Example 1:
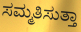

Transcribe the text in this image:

ಸಮ್ಮತಿಸುತ್ತಾ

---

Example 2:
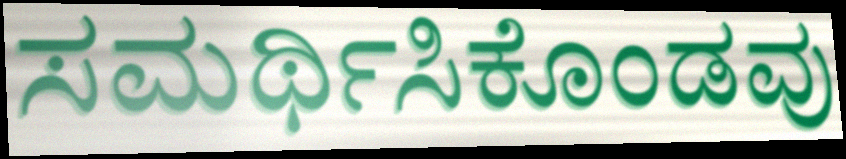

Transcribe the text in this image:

ಸಮರ್ಥಿಸಿಕೊಂಡವು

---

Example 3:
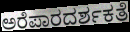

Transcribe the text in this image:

ಅರೆಪಾರದರ್ಶಕತೆ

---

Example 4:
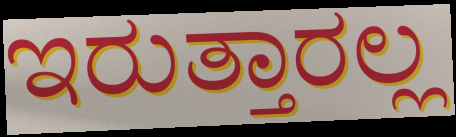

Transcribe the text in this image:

ಇರುತ್ತಾರಲ್ಲ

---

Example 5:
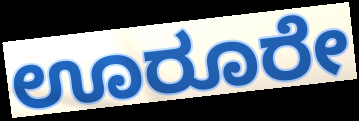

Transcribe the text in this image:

ಊರೂರೇ